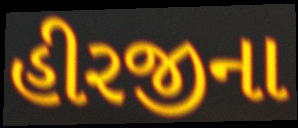
હીરજીના